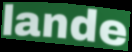
lande